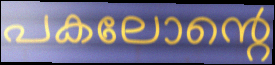
പകലോന്റെ